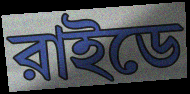
রাইডে